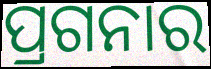
ପ୍ରଗନାର